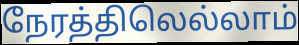
நேரத்திலெல்லாம்